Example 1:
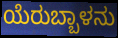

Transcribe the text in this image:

ಯೆರುಬ್ಬಾಳನು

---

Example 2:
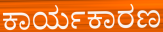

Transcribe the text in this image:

ಕಾರ್ಯಕಾರಣ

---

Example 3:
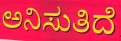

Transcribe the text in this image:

ಅನಿಸುತಿದೆ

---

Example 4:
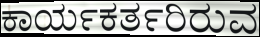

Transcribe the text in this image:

ಕಾರ್ಯಕರ್ತರಿರುವ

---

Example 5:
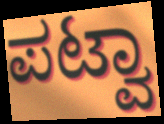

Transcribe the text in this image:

ಪಟ್ವಾ